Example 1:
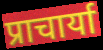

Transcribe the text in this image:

प्राचार्या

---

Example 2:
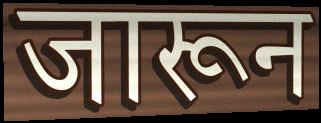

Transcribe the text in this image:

जारून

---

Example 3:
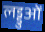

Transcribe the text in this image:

लड्डुओं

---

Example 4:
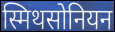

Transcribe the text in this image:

स्मिथसोनियन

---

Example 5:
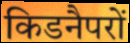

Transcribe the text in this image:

किडनैपरों